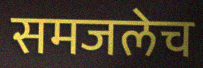
समजलेच